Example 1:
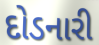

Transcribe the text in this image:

દોડનારી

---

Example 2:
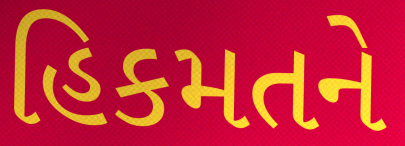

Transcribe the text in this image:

હિકમતને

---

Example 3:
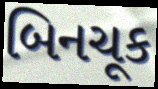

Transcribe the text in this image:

બિનચૂક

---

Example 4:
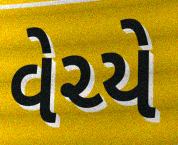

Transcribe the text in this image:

વેચ્યે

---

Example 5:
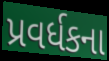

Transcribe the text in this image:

પ્રવર્ધકના